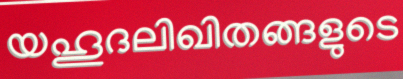
യഹൂദലിഖിതങ്ങളുടെ